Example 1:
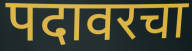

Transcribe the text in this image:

पदावरचा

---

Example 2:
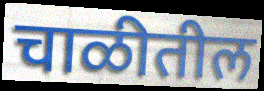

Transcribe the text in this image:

चाळीतील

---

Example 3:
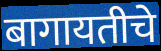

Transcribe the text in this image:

बागायतीचे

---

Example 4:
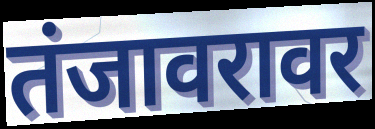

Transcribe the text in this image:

तंजावरावर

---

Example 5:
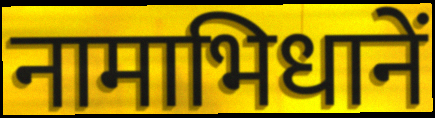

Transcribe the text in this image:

नामाभिधानें